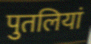
पुतलियां